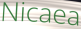
Nicaea